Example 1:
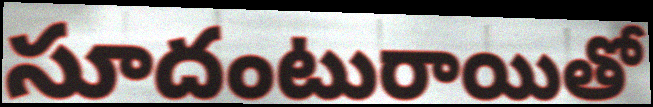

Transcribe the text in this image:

సూదంటురాయితో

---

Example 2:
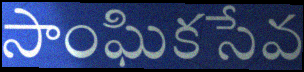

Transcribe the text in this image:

సాంఘికసేవ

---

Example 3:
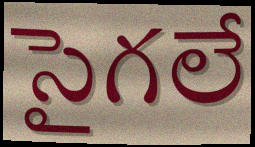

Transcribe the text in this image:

సైగలే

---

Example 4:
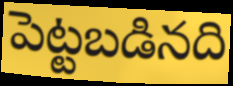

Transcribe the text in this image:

పెట్టబడినది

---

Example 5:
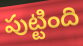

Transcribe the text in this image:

పుట్టింది